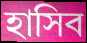
হাসিব